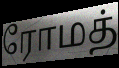
ரோமத்